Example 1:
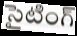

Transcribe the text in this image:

సైటింగ్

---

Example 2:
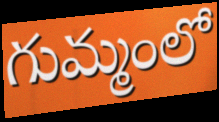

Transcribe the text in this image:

గుమ్మంలో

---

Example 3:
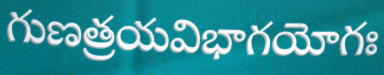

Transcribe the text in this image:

గుణత్రయవిభాగయోగః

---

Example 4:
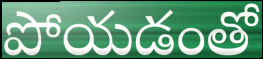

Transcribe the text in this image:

పోయడంతో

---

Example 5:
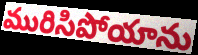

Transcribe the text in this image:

మురిసిపోయాను